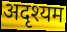
अदृश्यम